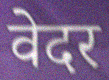
वेदर